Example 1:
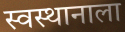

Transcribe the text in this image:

स्वस्थानाला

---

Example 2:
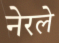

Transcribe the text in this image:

नेरले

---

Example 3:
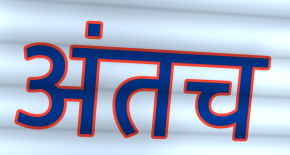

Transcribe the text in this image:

अंतच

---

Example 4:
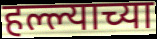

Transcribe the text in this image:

हल्ल्याच्या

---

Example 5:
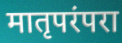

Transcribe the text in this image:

मातृपरंपरा